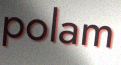
polam